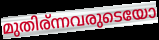
മുതിര്ന്നവരുടെയോ